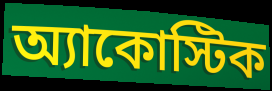
অ্যাকোস্টিক